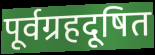
पूर्वग्रहदूषित